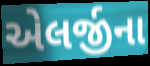
એલર્જીના